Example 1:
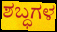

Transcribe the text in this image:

ಶಬ್ಧಗಳ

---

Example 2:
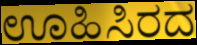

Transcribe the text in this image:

ಊಹಿಸಿರದ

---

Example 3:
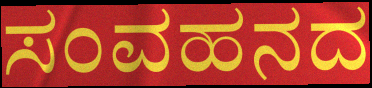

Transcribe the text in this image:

ಸಂವಹನದ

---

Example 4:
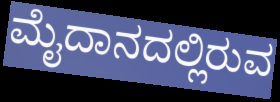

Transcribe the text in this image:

ಮೈದಾನದಲ್ಲಿರುವ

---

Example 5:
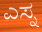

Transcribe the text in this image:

ಎಸ್ನ